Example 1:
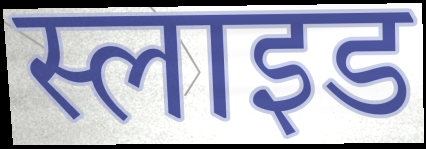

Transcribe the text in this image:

स्लाइड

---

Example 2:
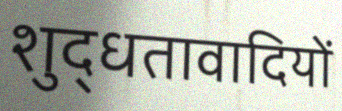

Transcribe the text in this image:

शुद्धतावादियों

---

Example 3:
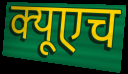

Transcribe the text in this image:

क्यूएच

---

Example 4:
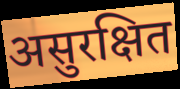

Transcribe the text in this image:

असुरक्षित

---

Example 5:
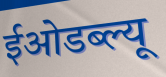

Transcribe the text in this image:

ईओडब्ल्यू